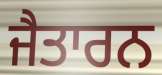
ਜੈਤਾਰਨ